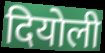
दियोली